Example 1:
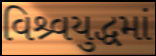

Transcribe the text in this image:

વિશ્ર્વયુદ્ધમાં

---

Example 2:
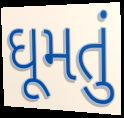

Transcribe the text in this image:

ઘૂમતું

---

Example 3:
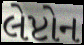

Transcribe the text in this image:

લેપ્ટોન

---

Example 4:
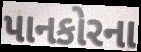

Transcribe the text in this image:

પાનકોરના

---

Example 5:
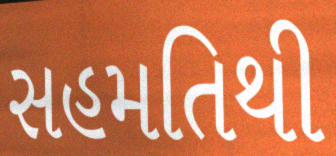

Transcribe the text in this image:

સહમતિથી